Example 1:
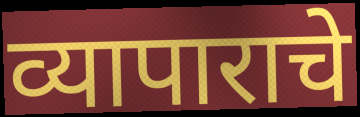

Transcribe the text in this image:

व्यापाराचे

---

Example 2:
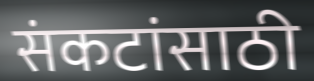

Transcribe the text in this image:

संकटांसाठी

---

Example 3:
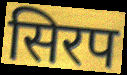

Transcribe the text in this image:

सिरप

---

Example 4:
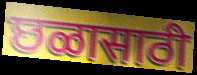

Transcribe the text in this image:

छळासाठी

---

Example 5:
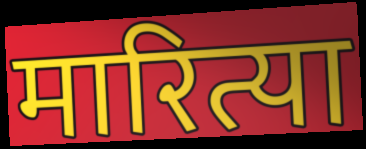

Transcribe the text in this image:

मारित्या